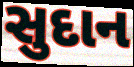
સુદાન